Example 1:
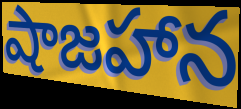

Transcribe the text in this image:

షాజహాన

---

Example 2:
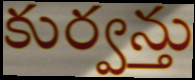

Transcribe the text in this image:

కుర్వన్తు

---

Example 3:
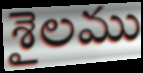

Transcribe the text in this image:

శైలము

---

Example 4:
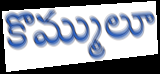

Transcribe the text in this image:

కొమ్ములూ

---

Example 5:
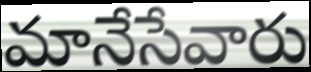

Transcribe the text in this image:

మానేసేవారు